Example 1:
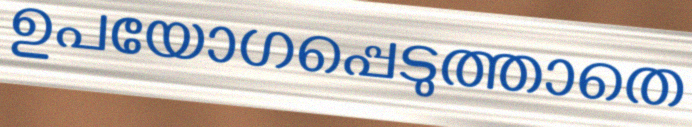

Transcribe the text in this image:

ഉപയോഗപ്പെടുത്താതെ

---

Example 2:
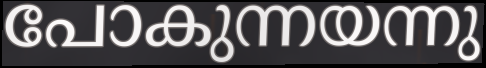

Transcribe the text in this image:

പോകുന്നയന്നു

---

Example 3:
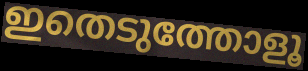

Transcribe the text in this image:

ഇതെടുത്തോളൂ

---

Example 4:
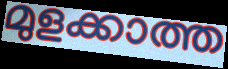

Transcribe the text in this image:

മുളക്കാത്ത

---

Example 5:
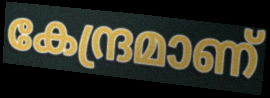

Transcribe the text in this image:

കേന്ദ്രമാണ്